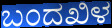
ಬಂದಖಿಳ